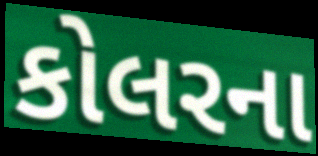
કોલરના